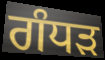
ਗੰਧੜ